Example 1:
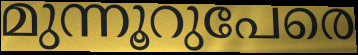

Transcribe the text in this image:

മുന്നൂറുപേരെ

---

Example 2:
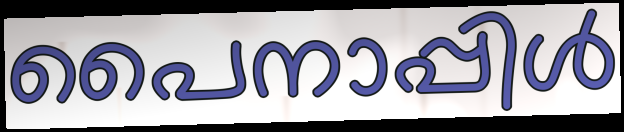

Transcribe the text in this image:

പൈനാപ്പിൾ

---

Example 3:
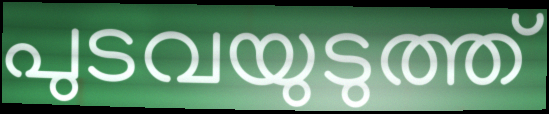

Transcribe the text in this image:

പുടവയുടുത്ത്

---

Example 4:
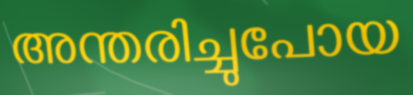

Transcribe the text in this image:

അന്തരിച്ചുപോയ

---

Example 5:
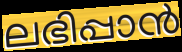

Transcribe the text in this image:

ലഭിപ്പാൻ